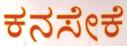
ಕನಸೇಕೆ